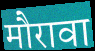
मौरावा